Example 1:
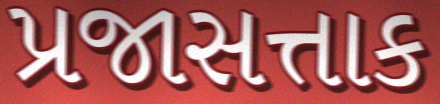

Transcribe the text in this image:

પ્રજાસત્તાક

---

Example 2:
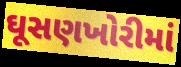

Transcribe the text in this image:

ઘૂસણખોરીમાં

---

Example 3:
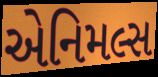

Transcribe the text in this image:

એનિમલ્સ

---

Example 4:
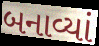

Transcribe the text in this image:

બનાવ્યાં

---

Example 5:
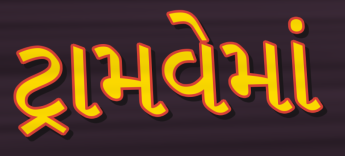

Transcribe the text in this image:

ટ્રામવેમાં